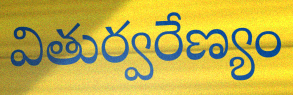
వితుర్వరేణ్యం